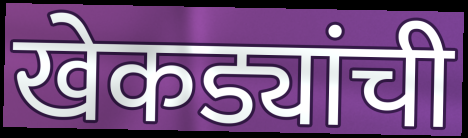
खेकड्यांची